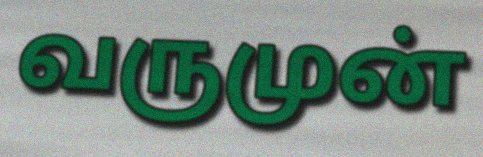
வருமுன்